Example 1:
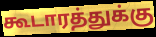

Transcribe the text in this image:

கூடாரத்துக்கு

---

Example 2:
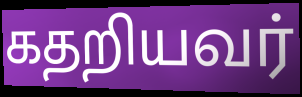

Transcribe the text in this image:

கதறியவர்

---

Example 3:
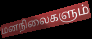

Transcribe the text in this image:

மனநிலைகளும்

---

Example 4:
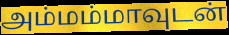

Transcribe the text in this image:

அம்மம்மாவுடன்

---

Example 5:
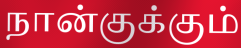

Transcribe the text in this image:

நான்குக்கும்